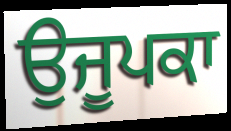
ਉਜੂਪਕਾ